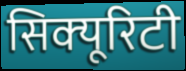
सिक्यूरिटी